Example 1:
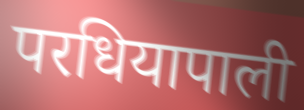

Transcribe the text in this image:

परधियापाली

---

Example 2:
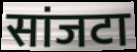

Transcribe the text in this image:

सांजटा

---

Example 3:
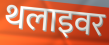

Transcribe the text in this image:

थलाइवर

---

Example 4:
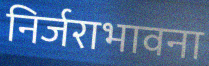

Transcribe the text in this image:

निर्जराभावना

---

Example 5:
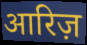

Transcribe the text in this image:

आरिज़